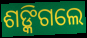
ଶଙ୍କିଗଲେ